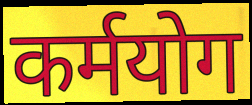
कर्मयोग